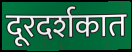
दूरदर्शकात